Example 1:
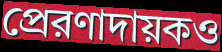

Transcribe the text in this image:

প্রেরণাদায়কও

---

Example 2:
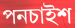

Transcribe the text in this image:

পনচাইশ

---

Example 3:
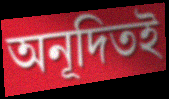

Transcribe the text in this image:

অনূদিতই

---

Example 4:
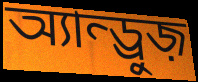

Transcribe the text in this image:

অ্যান্ড্রুজ়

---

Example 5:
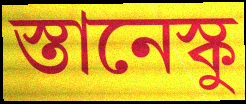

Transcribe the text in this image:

স্তানেস্কু